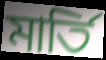
মার্তি